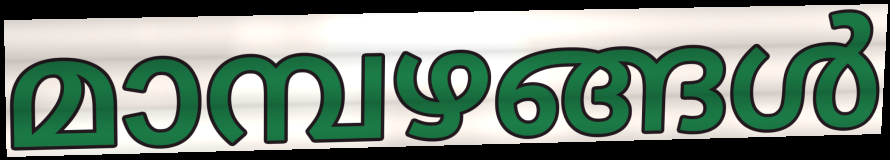
മാമ്പഴങ്ങൾ